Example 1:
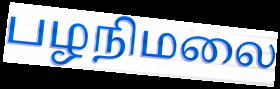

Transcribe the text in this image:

பழநிமலை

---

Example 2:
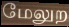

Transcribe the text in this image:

மேலுற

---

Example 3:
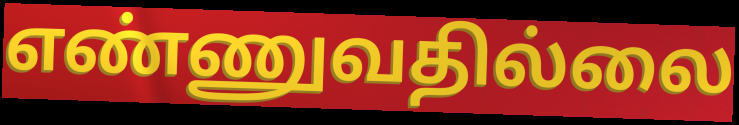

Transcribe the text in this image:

எண்ணுவதில்லை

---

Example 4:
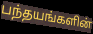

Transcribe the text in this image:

பந்தயங்களின்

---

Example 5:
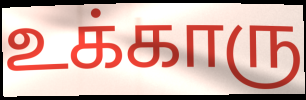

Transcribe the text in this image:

உக்காரு